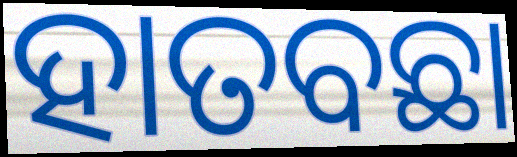
ହାତବଛା